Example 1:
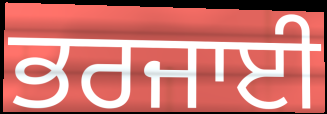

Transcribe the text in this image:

ਭਰਜਾਈ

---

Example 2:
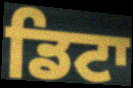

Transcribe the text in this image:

ਡਿਟਾ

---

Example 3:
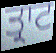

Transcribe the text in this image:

ਤ੍ਰਾਟ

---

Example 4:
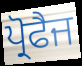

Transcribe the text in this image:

ਪ੍ਰੋਫੈਜ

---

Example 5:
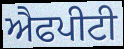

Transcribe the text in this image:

ਐਫਪੀਟੀ